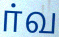
ர்வ